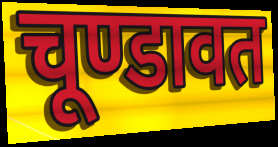
चूण्डावत